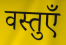
वस्तुएँ